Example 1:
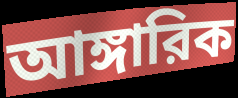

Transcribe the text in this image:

আঙ্গারিক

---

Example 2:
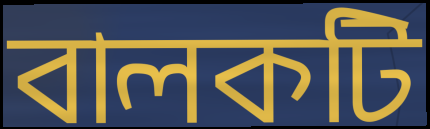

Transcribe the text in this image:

বালকটি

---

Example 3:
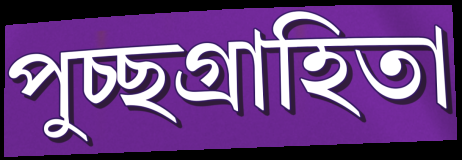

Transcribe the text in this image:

পুচ্ছগ্রাহিতা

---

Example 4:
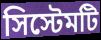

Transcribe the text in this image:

সিস্টেমটি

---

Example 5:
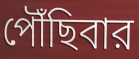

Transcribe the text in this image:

পৌঁছিবার